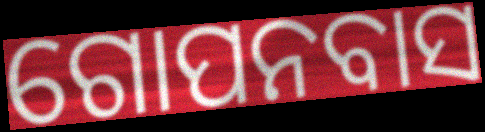
ଗୋପନବାସ